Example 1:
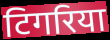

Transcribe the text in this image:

टिगरिया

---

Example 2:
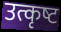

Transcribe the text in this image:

उत्‍कृष्‍ट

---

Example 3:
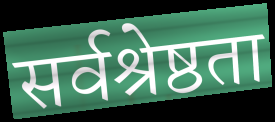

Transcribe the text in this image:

सर्वश्रेष्ठता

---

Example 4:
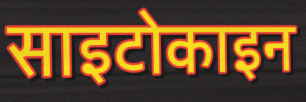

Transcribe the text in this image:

साइटोकाइन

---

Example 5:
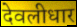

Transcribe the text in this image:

देवलीधार